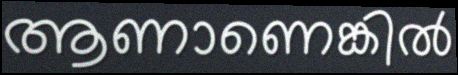
ആണാണെങ്കിൽ